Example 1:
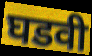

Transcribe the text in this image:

घडवी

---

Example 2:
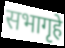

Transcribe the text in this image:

सभागृहे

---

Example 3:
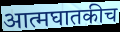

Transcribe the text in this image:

आत्मघातकीच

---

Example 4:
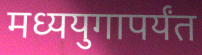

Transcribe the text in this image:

मध्ययुगापर्यंत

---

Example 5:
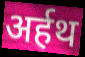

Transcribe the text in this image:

अर्हथ